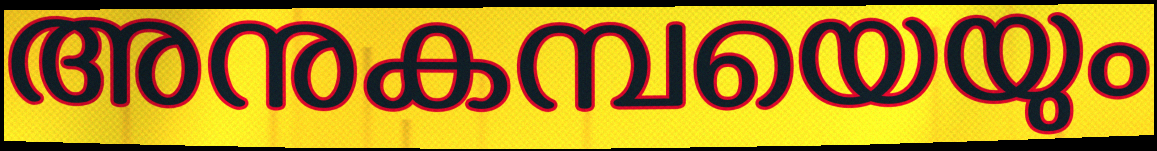
അനുകമ്പയെയും